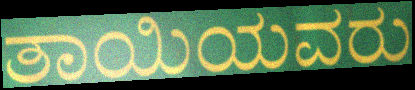
ತಾಯಿಯವರು